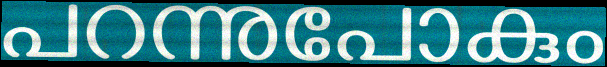
പറന്നുപോകും